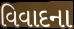
વિવાદના